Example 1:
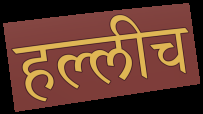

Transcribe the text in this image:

हल्लीच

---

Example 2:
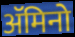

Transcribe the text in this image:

ॲमिनो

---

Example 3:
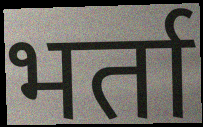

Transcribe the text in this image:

भर्ता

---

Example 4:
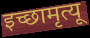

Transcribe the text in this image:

इच्छामृत्यू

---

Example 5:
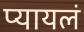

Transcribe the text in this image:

प्यायलं